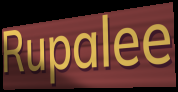
Rupalee